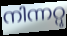
നിന്നറ്റു